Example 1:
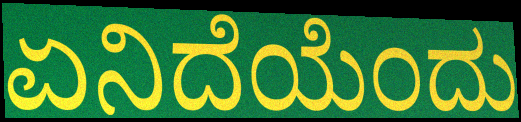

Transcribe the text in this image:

ಏನಿದೆಯೆಂದು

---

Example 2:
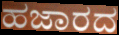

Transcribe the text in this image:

ಹಜಾರದ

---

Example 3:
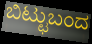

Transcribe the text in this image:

ಬಿಟ್ಟುಬಂದ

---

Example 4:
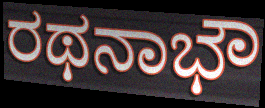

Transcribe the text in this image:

ರಥನಾಭೌ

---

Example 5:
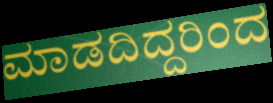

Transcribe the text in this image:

ಮಾಡದಿದ್ದರಿಂದ